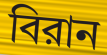
বিরান